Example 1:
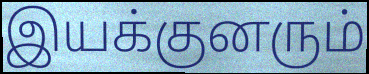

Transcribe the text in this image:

இயக்குனரும்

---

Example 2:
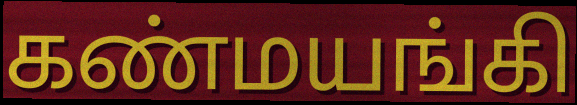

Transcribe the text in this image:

கண்மயங்கி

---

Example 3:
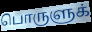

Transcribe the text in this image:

பொருளுக்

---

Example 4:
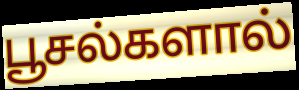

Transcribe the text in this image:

பூசல்களால்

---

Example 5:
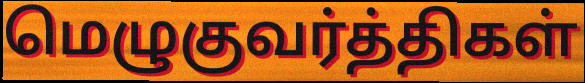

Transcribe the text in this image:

மெழுகுவர்த்திகள்